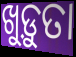
ଖୁଡ଼ୁତା